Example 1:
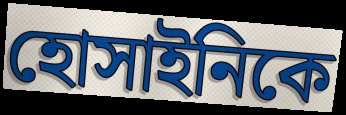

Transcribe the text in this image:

হোসাইনিকে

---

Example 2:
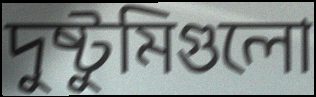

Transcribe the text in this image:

দুষ্টুমিগুলো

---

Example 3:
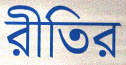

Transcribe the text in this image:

রীতির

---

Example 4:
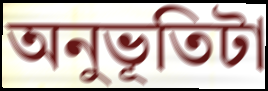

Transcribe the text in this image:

অনুভূতিটা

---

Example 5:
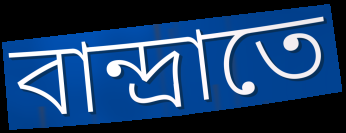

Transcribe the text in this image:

বান্দ্রাতে